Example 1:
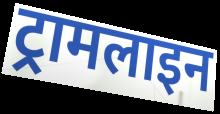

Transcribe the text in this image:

ट्रामलाइन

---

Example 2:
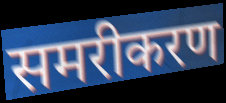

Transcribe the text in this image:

समरीकरण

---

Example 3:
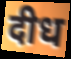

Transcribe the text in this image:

दीध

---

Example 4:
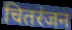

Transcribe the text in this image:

चितरंजन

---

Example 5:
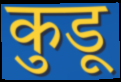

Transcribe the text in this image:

कुडू